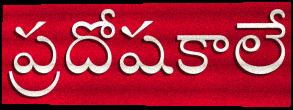
ప్రదోషకాలే